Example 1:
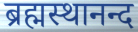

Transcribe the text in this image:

ब्रह्मस्थानन्द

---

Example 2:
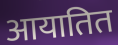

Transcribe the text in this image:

आयातित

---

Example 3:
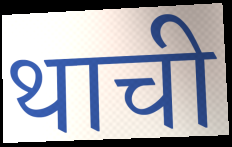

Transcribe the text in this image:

थाची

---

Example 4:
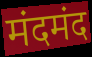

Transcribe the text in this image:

मंदमंद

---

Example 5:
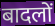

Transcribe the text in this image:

बादलों